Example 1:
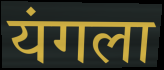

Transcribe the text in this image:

यंगला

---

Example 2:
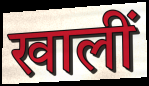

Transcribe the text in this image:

खालीं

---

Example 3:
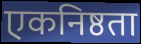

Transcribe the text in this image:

एकनिष्ठता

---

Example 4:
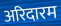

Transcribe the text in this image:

अरिदारम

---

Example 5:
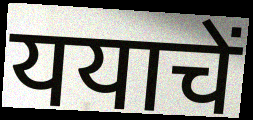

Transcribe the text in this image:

ययाचें